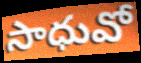
సాధువో